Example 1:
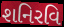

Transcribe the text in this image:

શનિરવિ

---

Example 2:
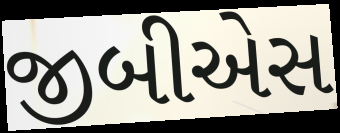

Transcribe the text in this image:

જીબીએસ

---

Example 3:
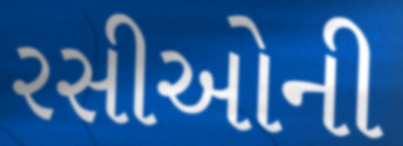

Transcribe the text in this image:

રસીઓની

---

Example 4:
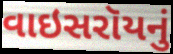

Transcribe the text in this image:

વાઇસરૉયનું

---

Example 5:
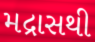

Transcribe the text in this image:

મદ્રાસથી